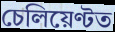
চেলিয়েণ্টত